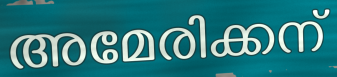
അമേരിക്കന്